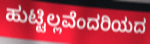
ಹುಟ್ಟಿಲ್ಲವೆಂದರಿಯದ